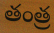
తంత్ర